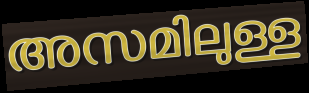
അസമിലുള്ള